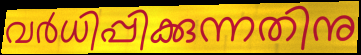
വർധിപ്പിക്കുന്നതിനു